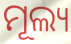
ମୂଲ୍ୟ